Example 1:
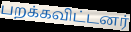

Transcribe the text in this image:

பறக்கவிட்டனர்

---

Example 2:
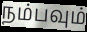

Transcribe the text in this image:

நம்பவும்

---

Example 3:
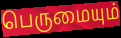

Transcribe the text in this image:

பெருமையும்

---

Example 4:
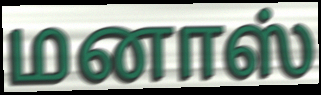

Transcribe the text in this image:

மனாஸ்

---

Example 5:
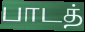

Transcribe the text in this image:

பாடத்